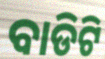
ବାଡିଟି